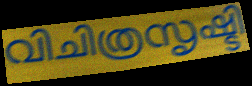
വിചിത്രസൃഷ്ടി